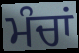
ਮੰਚਾਂ